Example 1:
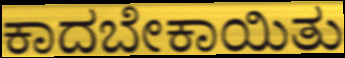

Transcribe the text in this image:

ಕಾದಬೇಕಾಯಿತು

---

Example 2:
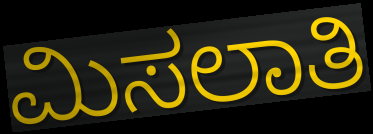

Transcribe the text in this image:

ಮಿಸಲಾತಿ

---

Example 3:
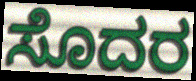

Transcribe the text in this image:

ಸೊದರ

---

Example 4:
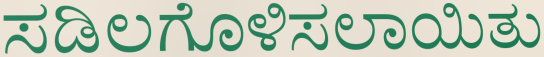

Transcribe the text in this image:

ಸಡಿಲಗೊಳಿಸಲಾಯಿತು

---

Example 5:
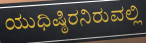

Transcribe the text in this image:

ಯುಧಿಷ್ಠಿರನಿರುವಲ್ಲಿ